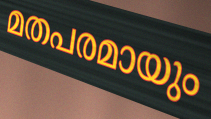
മതപരമായും